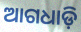
ଆଗଧାଡ଼ି